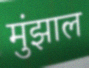
मुंझाल